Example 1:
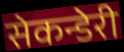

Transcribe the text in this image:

सेकन्डेरी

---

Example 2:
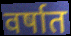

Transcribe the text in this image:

वर्षात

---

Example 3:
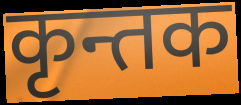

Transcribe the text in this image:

कृन्तक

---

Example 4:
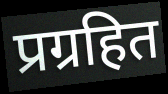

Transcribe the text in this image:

प्रग्रहित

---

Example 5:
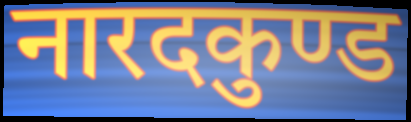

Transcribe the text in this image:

नारदकुण्ड